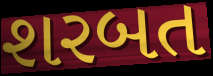
શરબત